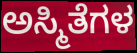
ಅಸ್ಮಿತೆಗಳ